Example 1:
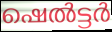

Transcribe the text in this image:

ഷെൽട്ടർ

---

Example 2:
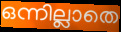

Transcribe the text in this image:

ഒന്നില്ലാതെ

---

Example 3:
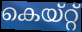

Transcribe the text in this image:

കെയ്റ്റ്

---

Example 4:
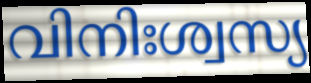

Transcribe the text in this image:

വിനിഃശ്വസ്യ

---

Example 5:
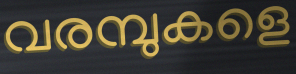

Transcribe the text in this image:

വരമ്പുകളെ